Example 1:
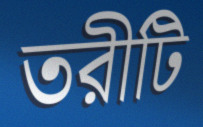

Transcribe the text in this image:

তরীটি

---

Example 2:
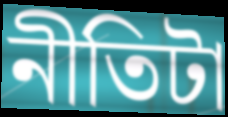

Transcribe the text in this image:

নীতিটা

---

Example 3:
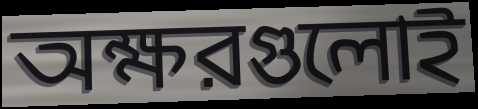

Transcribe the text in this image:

অক্ষরগুলোই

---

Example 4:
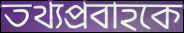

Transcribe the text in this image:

তথ্যপ্রবাহকে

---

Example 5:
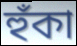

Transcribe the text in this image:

হুঁকা